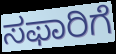
ಸಫಾರಿಗೆ